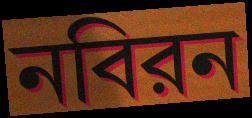
নবিরন